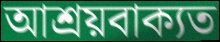
আশ্ৰয়বাক্যত